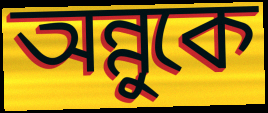
অন্নুকে